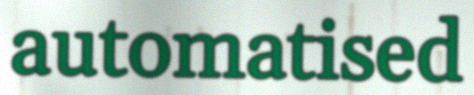
automatised